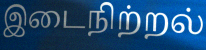
இடைநிற்றல்